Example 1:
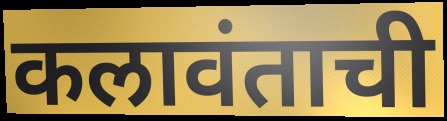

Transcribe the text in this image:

कलावंताची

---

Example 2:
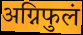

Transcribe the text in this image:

अग्निफुलं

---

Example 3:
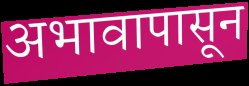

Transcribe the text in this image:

अभावापासून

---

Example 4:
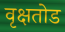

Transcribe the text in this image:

वृक्षतोड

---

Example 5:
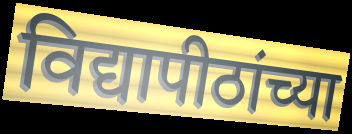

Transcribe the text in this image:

विद्यापीठांच्या